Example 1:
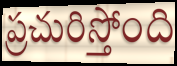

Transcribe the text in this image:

ప్రచురిస్తోంది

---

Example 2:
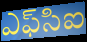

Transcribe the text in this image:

ఎఫ్‌సిఐ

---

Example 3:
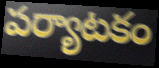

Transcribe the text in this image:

పర్యాటకం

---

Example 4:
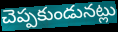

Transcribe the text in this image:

చెప్పకుండునట్లు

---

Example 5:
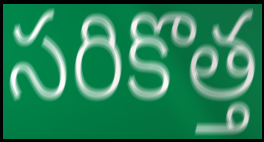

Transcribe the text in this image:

సరికొత్త